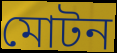
মোটন